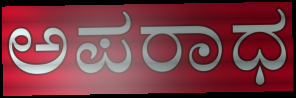
ಅಪರಾಧ